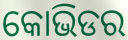
କୋଭିଡର